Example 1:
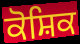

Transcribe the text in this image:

ਕੋਸ਼ਿਕ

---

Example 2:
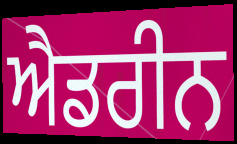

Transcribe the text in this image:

ਐਡਰੀਨ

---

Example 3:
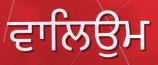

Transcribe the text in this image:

ਵਾਲਿਉਮ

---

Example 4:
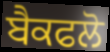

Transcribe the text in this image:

ਬੈਕਫਲੋ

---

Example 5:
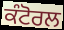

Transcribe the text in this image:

ਕੰਟੋਰਲ